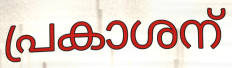
പ്രകാശന്